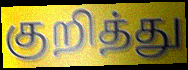
குறித்து